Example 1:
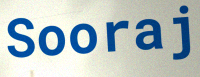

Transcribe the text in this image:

Sooraj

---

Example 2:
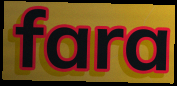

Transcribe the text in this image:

fara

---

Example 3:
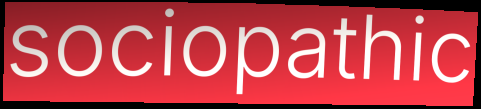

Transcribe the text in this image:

sociopathic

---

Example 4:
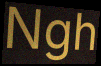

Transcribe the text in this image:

Ngh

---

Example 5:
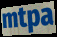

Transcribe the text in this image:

mtpa